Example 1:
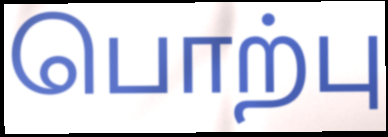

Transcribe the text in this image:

பொற்பு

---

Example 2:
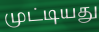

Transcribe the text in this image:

முட்டியது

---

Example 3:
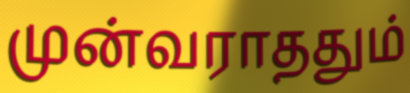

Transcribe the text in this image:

முன்வராததும்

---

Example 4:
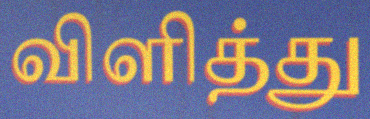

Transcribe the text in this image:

விளித்து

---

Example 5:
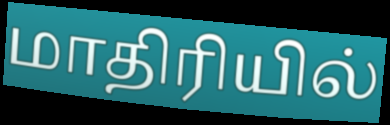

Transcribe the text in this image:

மாதிரியில்